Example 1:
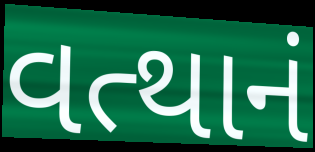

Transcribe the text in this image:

વત્થાનં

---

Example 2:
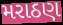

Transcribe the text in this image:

મરાઠણ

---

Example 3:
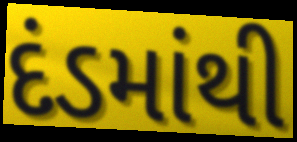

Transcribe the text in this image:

દંડમાંથી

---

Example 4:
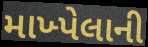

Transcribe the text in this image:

માખ્પેલાની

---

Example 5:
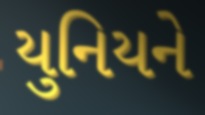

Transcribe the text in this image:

યુનિયને